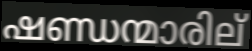
ഷണ്ഡന്മാരില്